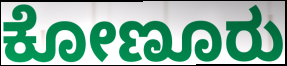
ಕೋಣೂರು